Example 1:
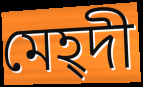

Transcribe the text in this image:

মেহ্দী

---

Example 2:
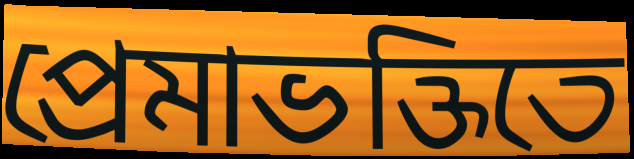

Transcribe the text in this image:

প্রেমাভক্তিতে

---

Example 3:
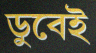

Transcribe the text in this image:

ডুবেই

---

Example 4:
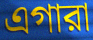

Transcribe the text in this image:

এগারা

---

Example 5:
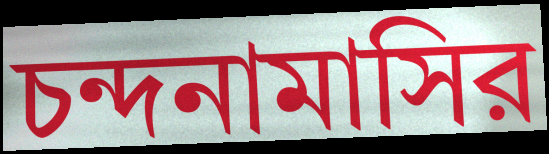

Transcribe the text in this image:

চন্দনামাসির